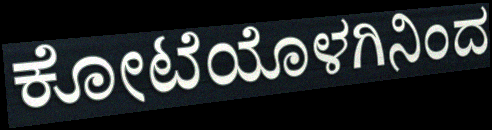
ಕೋಟೆಯೊಳಗಿನಿಂದ